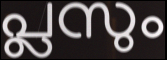
പ്ലസും